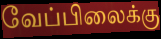
வேப்பிலைக்கு